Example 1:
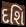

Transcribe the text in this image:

દશિ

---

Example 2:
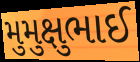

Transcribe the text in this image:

મુમુક્ષુભાઈ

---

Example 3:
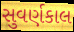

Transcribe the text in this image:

સુવર્ણકાલ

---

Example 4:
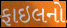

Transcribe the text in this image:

ફાઇલનો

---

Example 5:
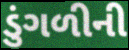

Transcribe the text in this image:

ડુંગળીની